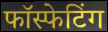
फॉस्फेटिंग